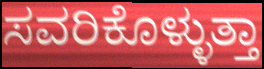
ಸವರಿಕೊಳ್ಳುತ್ತಾ